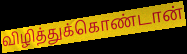
விழித்துக்கொண்டான்